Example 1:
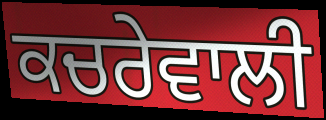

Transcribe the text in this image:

ਕਚਰੇਵਾਲੀ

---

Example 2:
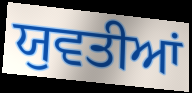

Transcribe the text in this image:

ਯੁਵਤੀਆਂ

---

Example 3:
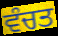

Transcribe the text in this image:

ਵੰਚਤ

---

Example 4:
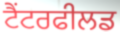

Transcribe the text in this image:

ਟੈਂਟਰਫੀਲਡ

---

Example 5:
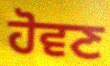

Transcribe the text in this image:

ਹੋਵਣ